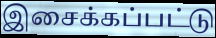
இசைக்கப்பட்டு